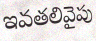
ఇవతలివైపు